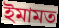
ইমামত